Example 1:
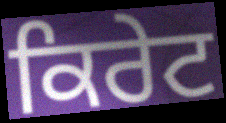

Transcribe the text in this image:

ਕਿਰੇਟ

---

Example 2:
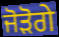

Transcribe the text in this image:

ਜੋੜੋਗੇ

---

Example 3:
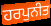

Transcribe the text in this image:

ਹਰਪੁਨੀਤ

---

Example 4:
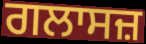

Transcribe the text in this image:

ਗਲਾਸਜ਼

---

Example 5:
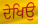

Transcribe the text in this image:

ਦੇਖਿਉ